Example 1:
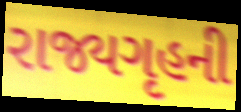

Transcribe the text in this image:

રાજ્યગૃહની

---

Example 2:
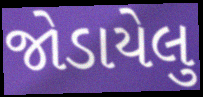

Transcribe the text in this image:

જોડાયેલુ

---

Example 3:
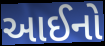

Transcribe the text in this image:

આઈનો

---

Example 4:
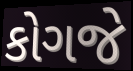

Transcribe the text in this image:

કોગજે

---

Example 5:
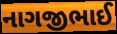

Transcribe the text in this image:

નાગજીભાઈ